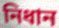
নিধান